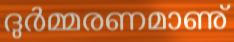
ദുർമ്മരണമാണു്